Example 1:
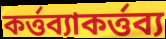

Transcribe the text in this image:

কর্ত্তব্যাকর্ত্তব্য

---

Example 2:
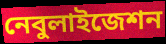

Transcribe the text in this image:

নেবুলাইজেশন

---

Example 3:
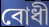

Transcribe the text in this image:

বোধী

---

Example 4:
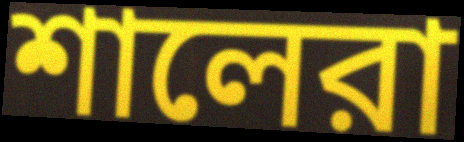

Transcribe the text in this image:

শালেরা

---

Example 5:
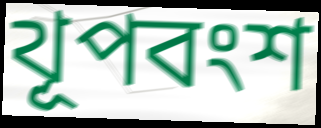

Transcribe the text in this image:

থূপবংশ